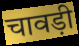
चावड़ी